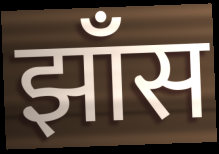
झाँस